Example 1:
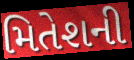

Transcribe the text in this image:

મિતેશની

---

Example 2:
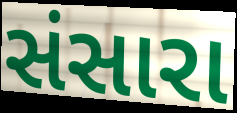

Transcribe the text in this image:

સંસારા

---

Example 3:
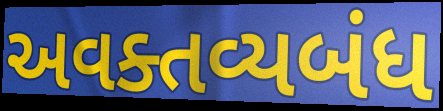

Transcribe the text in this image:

અવક્તવ્યબંધ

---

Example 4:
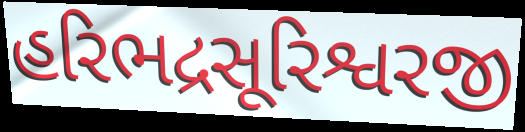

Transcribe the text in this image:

હરિભદ્રસૂરિશ્વરજી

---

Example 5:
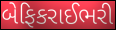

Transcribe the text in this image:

બેફિકરાઈભરી